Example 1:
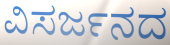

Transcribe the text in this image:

ವಿಸರ್ಜನದ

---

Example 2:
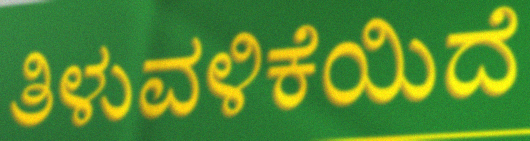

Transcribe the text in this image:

ತಿಳುವಳಿಕೆಯಿದೆ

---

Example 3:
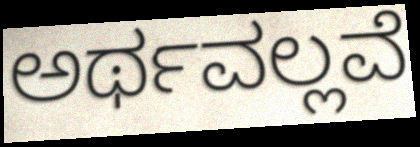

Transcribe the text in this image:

ಅರ್ಥವಲ್ಲವೆ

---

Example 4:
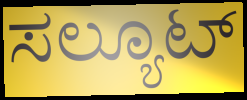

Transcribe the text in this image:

ಸಲ್ಯೂಟ್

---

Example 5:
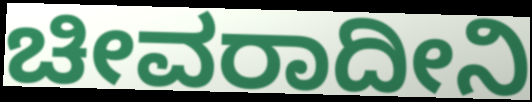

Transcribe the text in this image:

ಚೀವರಾದೀನಿ